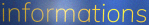
informations